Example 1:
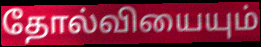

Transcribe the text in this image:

தோல்வியையும்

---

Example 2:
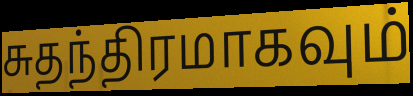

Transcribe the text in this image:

சுதந்திரமாகவும்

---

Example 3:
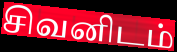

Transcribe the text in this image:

சிவனிடம்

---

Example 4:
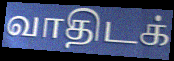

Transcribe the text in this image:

வாதிடக்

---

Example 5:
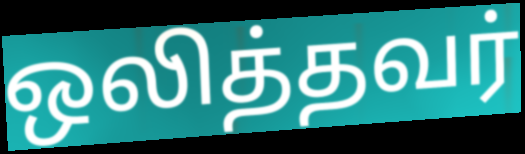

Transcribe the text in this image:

ஒலித்தவர்